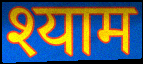
श्याम